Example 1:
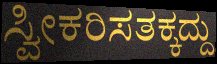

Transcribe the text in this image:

ಸ್ವೀಕರಿಸತಕ್ಕದ್ದು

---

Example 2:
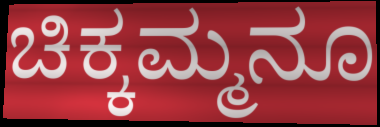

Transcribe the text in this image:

ಚಿಕ್ಕಮ್ಮನೂ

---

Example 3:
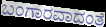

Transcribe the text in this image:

ಬಂಗಾರವಾದಂತೆ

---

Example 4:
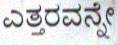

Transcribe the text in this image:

ಎತ್ತರವನ್ನೇ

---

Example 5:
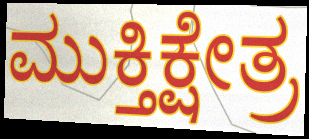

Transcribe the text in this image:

ಮುಕ್ತಿಕ್ಷೇತ್ರ